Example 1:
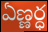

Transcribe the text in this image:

ఏణ్ణర్ధ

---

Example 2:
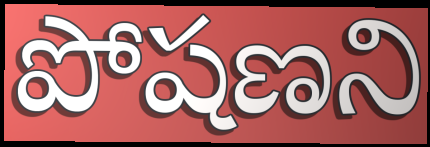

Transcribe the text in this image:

పోషణని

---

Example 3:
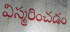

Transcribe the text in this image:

విస్మరించడం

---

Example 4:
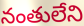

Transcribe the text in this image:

నంతులేని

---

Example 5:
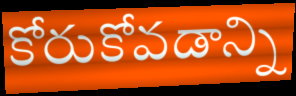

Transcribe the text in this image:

కోరుకోవడాన్ని